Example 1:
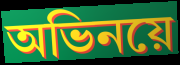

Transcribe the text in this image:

অভিনয়ে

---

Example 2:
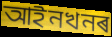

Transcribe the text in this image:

আইনখনৰ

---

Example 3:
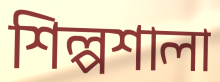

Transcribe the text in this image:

শিল্পশালা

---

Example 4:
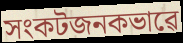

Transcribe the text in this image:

সংকটজনকভাৱে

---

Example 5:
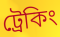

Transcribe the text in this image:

ট্ৰেকিং